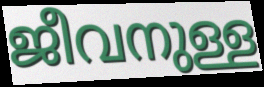
ജീവനുള്ള